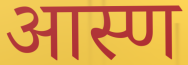
आस्ण